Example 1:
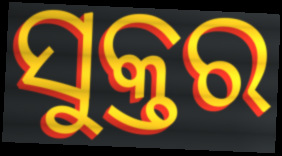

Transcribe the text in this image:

ସୁକ୍ତର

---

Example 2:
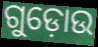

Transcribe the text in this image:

ଗୁଡ଼ୋଉ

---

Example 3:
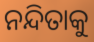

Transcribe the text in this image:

ନନ୍ଦିତାକୁ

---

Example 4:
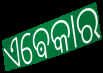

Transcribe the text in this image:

ଏଵେକାର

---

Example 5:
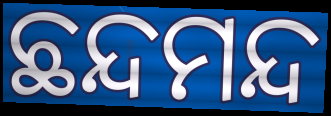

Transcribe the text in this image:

ଛନ୍ଦମନ୍ଦ